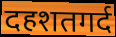
दहशतगर्द